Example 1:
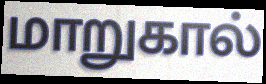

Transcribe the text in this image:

மாறுகால்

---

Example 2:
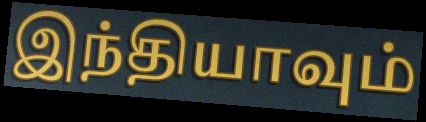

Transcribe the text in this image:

இந்தியாவும்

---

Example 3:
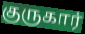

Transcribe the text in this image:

குருகார்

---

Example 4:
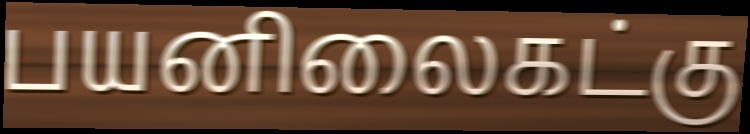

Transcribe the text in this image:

பயனிலைகட்கு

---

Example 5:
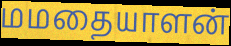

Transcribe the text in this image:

மமதையாளன்